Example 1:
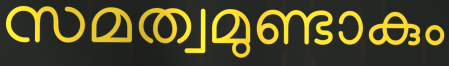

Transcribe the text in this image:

സമത്വമുണ്ടാകും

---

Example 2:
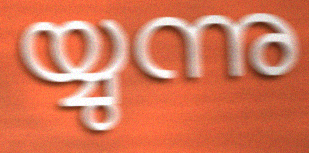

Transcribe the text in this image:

യ്യുന്നു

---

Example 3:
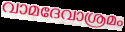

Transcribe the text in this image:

വാമദേവാശ്രമം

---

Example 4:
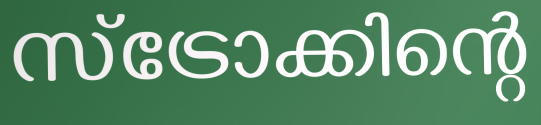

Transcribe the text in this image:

സ്ട്രോക്കിന്റെ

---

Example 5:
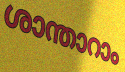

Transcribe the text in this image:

ശാന്താറാം